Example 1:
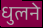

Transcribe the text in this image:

धुलने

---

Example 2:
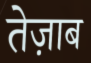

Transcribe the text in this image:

तेज़ाब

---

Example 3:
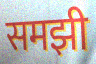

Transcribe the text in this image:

समझी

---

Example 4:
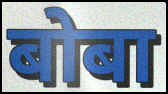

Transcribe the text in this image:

बोबा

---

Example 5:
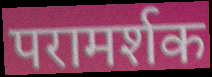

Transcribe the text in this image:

परामर्शक